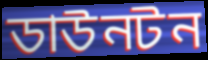
ডাউনটন